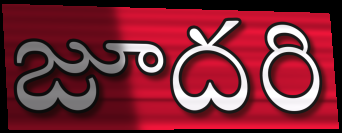
జూదరి